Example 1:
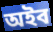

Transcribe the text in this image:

অইব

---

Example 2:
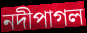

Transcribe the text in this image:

নদীপাগল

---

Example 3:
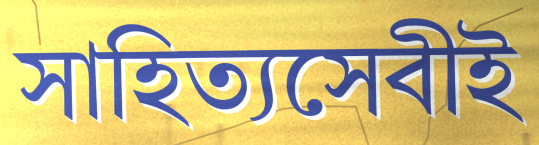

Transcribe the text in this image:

সাহিত্যসেবীই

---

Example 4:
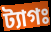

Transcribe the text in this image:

ট্যাগঃ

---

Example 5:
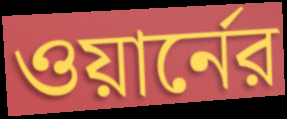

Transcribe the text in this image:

ওয়ার্নের